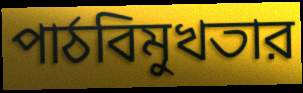
পাঠবিমুখতার